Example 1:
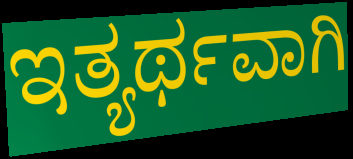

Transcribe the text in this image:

ಇತ್ಯರ್ಥವಾಗಿ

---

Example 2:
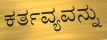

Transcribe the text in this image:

ಕರ್ತವ್ಯವನ್ನು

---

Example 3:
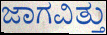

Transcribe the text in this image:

ಜಾಗವಿತ್ತು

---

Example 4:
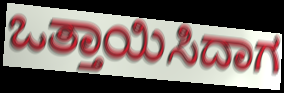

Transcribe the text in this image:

ಒತ್ತಾಯಿಸಿದಾಗ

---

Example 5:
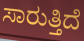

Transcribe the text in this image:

ಸಾರುತ್ತಿದೆ